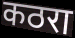
कठरा